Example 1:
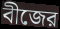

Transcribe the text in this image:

বীজের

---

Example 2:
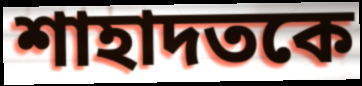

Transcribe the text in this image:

শাহাদতকে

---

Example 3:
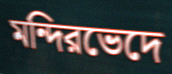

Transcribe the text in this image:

মন্দিরভেদে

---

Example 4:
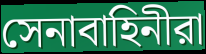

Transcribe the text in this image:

সেনাবাহিনীরা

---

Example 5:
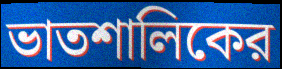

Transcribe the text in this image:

ভাতশালিকের